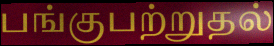
பங்குபற்றுதல்